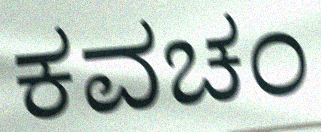
ಕವಚಂ